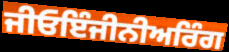
ਜੀਓਇੰਜੀਨੀਅਰਿੰਗ